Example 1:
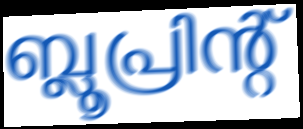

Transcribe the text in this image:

ബ്ലൂപ്രിന്റ്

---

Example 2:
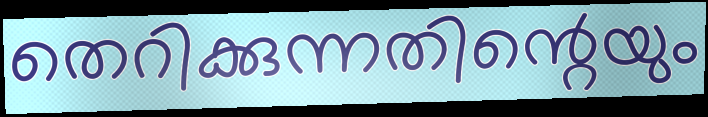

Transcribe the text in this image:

തെറിക്കുന്നതിന്റെയും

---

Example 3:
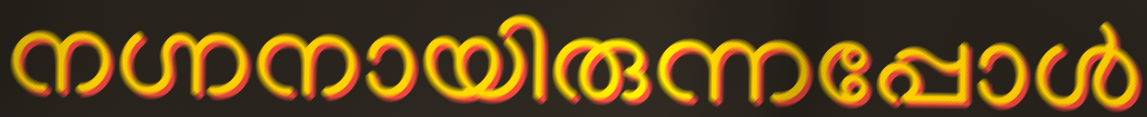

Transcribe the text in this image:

നഗ്നനായിരുന്നപ്പോൾ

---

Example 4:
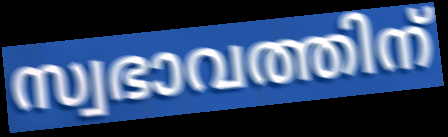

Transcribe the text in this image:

സ്വഭാവത്തിന്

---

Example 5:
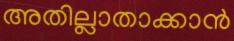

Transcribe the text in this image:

അതില്ലാതാക്കാൻ